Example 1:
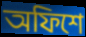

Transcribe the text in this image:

অফিশে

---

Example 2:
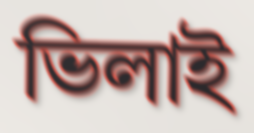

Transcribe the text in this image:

ভিলাই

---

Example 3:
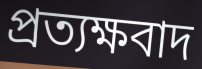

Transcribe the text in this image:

প্রত্যক্ষবাদ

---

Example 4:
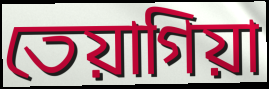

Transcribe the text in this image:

তেয়াগিয়া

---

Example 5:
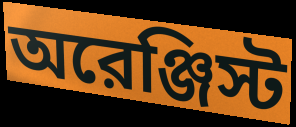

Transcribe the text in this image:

অরেঞ্জিস্ট